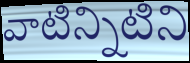
వాటిన్నిటిని